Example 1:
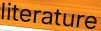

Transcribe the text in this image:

Iiterature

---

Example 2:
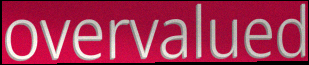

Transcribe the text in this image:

overvalued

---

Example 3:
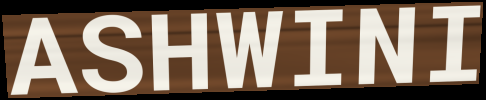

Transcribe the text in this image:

ASHWINI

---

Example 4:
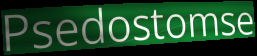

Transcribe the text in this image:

Psedostomse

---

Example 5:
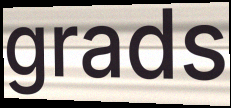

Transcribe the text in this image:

grads